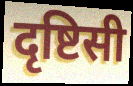
दृष्टिसी